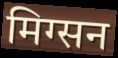
मिग्सन